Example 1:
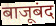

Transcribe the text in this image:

बाजूबंद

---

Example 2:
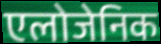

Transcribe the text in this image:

एलोजेनिक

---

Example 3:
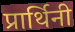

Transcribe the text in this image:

प्रार्थिनी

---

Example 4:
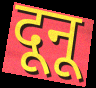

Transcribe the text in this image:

दूनू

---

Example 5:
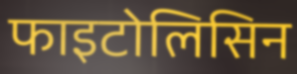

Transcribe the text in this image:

फाइटोलिसिन